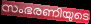
സംഭരണിയുടെ